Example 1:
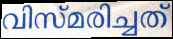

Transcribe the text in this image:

വിസ്മരിച്ചത്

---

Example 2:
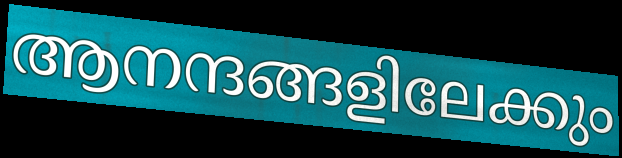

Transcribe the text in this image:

ആനന്ദങ്ങളിലേക്കും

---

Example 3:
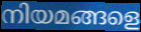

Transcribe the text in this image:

നിയമങ്ങളെ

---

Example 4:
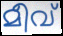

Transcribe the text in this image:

മീവ്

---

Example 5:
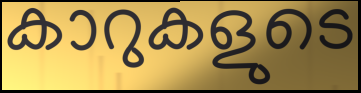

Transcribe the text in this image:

കാറുകളുടെ